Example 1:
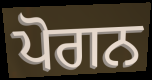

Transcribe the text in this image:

ਪੋਗਨ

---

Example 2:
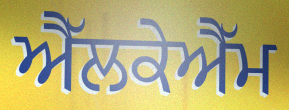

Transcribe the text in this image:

ਐੱਲਕੇਐੱਮ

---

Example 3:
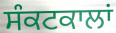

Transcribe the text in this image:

ਸੰਕਟਕਾਲਾਂ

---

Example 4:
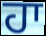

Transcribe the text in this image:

ਹਾ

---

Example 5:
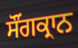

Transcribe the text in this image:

ਸੌਂਗਕ੍ਰਾਨ